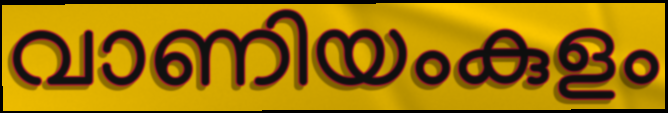
വാണിയംകുളം